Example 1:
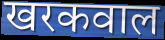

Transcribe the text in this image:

खरकवाल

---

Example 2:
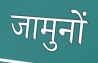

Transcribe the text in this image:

जामुनों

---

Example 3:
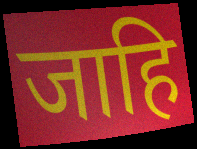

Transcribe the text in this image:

जाहि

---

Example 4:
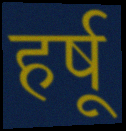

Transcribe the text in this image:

हर्षू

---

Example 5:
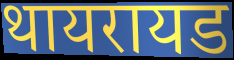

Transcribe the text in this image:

थायरायड